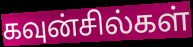
கவுன்சில்கள்